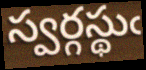
స్వర్గస్థుఁ